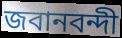
জবানবন্দী